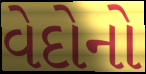
વેદોનો